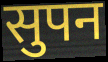
सुपन